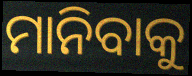
ମାନିବାକୁ